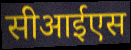
सीआईएस